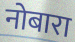
नोबारा